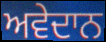
ਅਵੇਦਾਨ